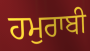
ਹਮੁਰਾਬੀ